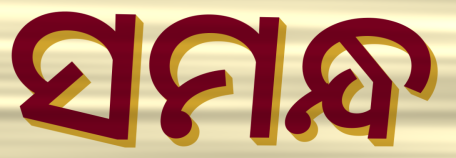
ସମନ୍ଧ